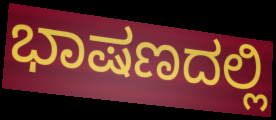
ಭಾಷಣದಲ್ಲಿ